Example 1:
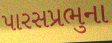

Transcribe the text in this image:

પારસપ્રભુના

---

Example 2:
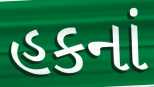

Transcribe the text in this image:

હકનાં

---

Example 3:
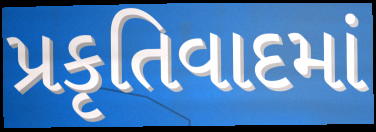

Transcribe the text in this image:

પ્રકૃતિવાદમાં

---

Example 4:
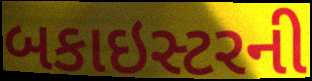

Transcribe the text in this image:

બકાઇસ્ટરની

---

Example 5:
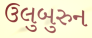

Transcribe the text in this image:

ઉલુબુરુન